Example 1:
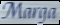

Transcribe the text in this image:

Marga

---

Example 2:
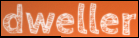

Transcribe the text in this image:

dweller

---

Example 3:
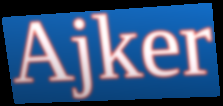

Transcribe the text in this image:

Ajker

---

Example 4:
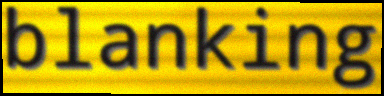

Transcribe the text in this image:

blanking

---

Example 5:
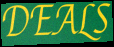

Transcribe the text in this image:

DEALS